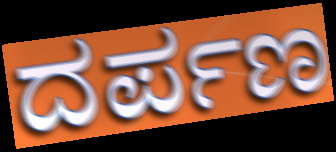
ದರ್ಪಣ